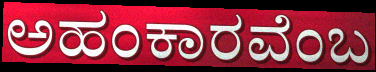
ಅಹಂಕಾರವೆಂಬ